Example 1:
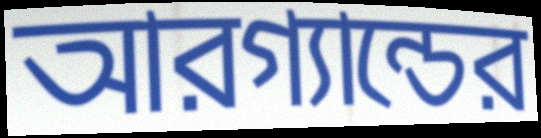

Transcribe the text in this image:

আরগ্যান্ডের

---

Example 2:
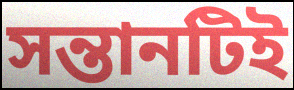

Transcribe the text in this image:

সন্তানটিই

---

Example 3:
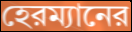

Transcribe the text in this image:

হেরম্যানের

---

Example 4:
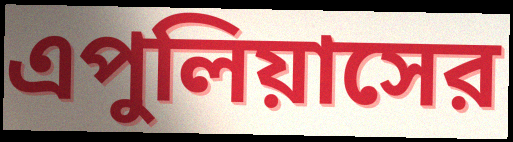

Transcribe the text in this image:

এপুলিয়াসের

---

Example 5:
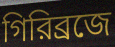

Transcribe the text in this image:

গিরিব্রজে